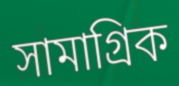
সামাগ্রিক